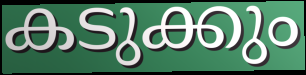
കടുക്കും